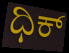
ಧಿಕ್